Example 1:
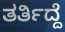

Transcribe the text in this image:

ತರ್ತಿದ್ದೆ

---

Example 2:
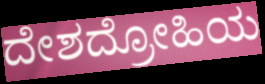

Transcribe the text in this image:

ದೇಶದ್ರೋಹಿಯ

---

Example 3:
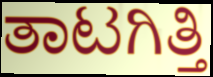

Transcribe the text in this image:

ತಾಟಗಿತ್ತಿ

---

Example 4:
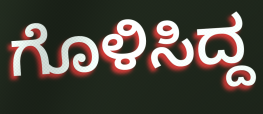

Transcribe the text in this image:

ಗೊಳಿಸಿದ್ದ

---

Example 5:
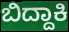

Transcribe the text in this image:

ಬಿದ್ದಾಕಿ